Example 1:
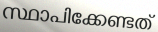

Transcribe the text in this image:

സ്ഥാപിക്കേണ്ടത്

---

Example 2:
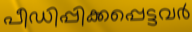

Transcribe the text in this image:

പീഡിപ്പിക്കപ്പെട്ടവർ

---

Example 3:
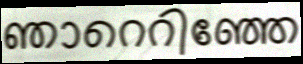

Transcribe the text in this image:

ഞാറെറിഞ്ഞേ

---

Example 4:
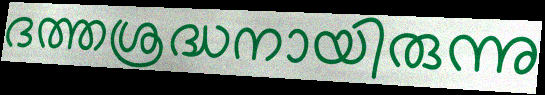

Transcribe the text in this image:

ദത്തശ്രദ്ധനായിരുന്നു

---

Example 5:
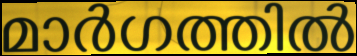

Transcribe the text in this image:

മാർഗത്തിൽ